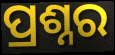
ପ୍ରଶ୍ନର